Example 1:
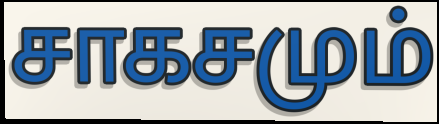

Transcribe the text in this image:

சாகசமும்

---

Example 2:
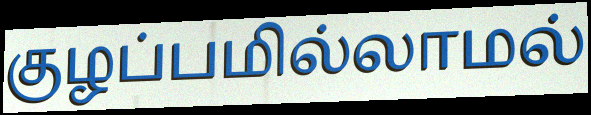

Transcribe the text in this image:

குழப்பமில்லாமல்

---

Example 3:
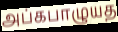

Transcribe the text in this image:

அப்கபாழுயத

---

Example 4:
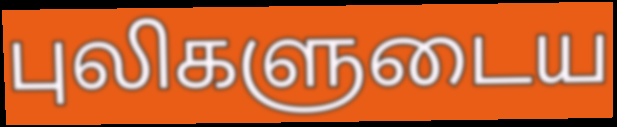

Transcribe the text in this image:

புலிகளுடைய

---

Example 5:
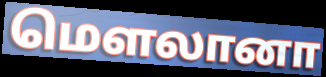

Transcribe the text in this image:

மௌலானா